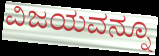
ವಿಜಯವನ್ನೂ